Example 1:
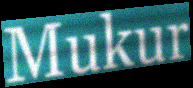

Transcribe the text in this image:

Mukur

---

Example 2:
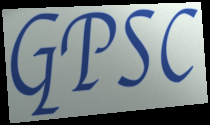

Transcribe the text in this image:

GPSC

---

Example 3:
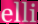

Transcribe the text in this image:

elli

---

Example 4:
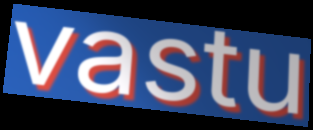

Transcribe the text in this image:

vastu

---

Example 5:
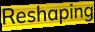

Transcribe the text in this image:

Reshaping